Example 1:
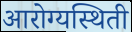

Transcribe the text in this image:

आरोग्यस्थिती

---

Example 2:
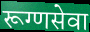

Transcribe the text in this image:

रूग्णसेवा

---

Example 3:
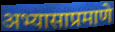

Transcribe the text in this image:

अभ्यासाप्रमाणे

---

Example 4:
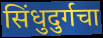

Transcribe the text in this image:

सिंधुदुर्गचा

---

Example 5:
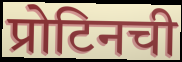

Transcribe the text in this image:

प्रोटिनची